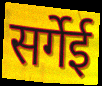
सर्गेई